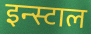
इन्स्टाल